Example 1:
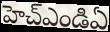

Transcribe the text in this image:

హెచ్ఎండిఏ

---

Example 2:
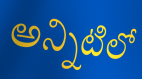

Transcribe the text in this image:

అన్నిటిలో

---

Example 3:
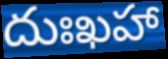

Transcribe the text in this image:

దుఃఖహా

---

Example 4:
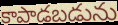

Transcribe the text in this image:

కాపాడబడును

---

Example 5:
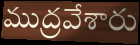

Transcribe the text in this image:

ముద్రవేశారు